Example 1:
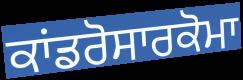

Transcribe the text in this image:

ਕਾਂਡਰੋਸਾਰਕੋਮਾ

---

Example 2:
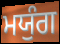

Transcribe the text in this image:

ਮਯੁੰਗ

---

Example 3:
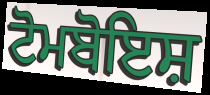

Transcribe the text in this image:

ਟੋਮਬੋਇਸ਼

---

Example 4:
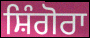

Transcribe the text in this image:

ਸ਼ਿੰਗੋਰਾ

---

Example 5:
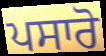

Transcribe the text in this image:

ਪਸਾਰੋ